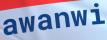
awanwi